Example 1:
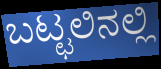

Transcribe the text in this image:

ಬಟ್ಟಲಿನಲ್ಲಿ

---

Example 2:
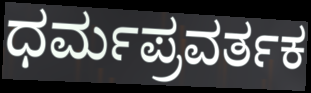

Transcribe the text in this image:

ಧರ್ಮಪ್ರವರ್ತಕ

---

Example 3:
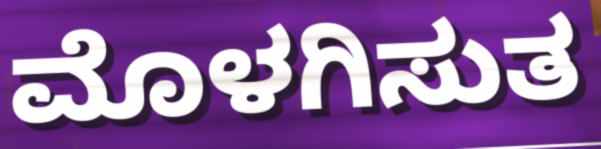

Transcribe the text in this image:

ಮೊಳಗಿಸುತ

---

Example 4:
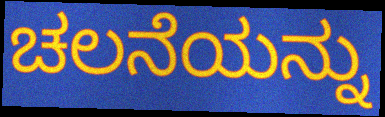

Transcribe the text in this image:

ಚಲನೆಯನ್ನು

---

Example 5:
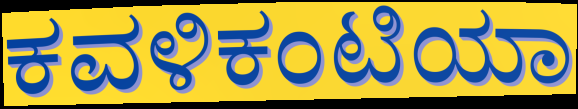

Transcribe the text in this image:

ಕವಳಿಕಂಟಿಯಾ